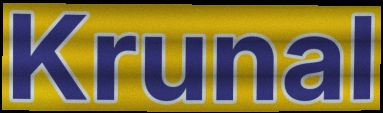
Krunal